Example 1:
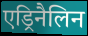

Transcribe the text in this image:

एड्रिनैलिन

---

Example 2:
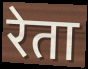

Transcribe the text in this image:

रेता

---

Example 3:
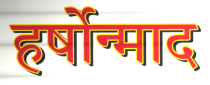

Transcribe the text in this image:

हर्षोन्माद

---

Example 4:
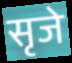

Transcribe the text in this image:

सृजे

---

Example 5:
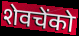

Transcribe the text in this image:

शेवचेंको